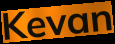
Kevan